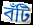
বঁটি